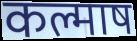
कल्माष